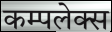
कम्पलेक्स